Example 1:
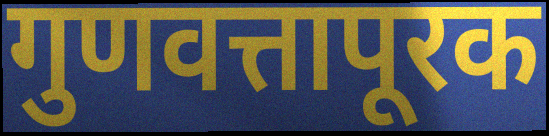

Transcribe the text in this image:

गुणवत्तापूरक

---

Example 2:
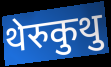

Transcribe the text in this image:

थेरुकुथु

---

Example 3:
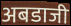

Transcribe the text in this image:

अबडाजी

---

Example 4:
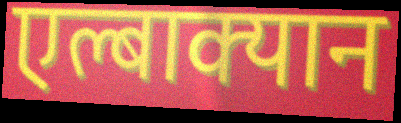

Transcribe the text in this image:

एल्बाक्यान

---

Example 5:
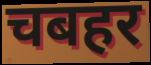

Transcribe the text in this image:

चबहर